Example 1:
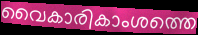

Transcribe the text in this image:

വൈകാരികാംശത്തെ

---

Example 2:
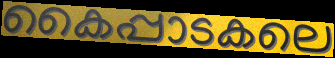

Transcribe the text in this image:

കൈപ്പാടകലെ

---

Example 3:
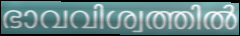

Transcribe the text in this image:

ഭാവവിശ്വത്തിൽ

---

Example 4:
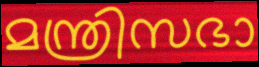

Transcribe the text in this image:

മന്ത്രിസഭാ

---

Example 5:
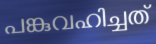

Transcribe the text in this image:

പങ്കുവഹിച്ചത്